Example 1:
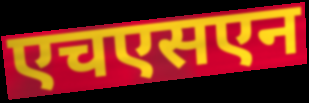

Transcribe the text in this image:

एचएसएन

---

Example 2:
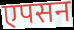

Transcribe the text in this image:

एपसन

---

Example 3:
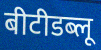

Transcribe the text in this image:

बीटीडब्लू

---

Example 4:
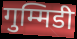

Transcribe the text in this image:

गुम्मिडी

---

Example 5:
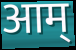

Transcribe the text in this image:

आम्